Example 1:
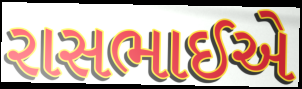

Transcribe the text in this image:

રાસભાઈએ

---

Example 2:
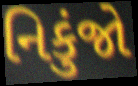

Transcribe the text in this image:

નિકુંજો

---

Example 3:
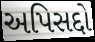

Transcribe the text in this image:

અપિસદ્દો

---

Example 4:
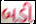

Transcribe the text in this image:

બડી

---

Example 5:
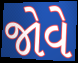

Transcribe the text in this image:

જોવે